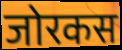
जोरकस